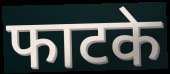
फाटके